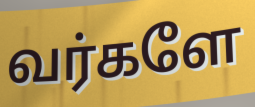
வர்களே